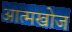
आत्मखोज